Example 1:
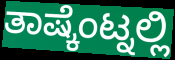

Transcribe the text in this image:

ತಾಷ್ಕೆಂಟ್ನಲ್ಲಿ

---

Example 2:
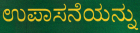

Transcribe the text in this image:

ಉಪಾಸನೆಯನ್ನು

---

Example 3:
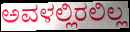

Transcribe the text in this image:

ಅವಳಲ್ಲಿರಲಿಲ್ಲ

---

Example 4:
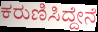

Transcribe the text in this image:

ಕರುಣಿಸಿದ್ದೇನೆ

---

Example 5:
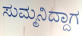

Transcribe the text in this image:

ಸುಮ್ಮನಿದ್ದಾಗ